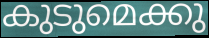
കുടുമെക്കു